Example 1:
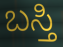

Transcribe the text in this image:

ಬಸ್ತಿ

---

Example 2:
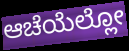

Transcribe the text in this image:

ಆಚೆಯೆಲ್ಲೋ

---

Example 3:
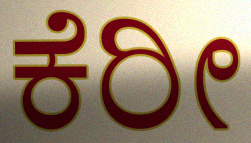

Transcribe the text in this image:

ಕೆರೀ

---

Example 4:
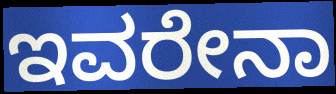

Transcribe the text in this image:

ಇವರೇನಾ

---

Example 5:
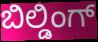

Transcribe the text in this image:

ಬಿಲ್ಡಿಂಗ್